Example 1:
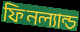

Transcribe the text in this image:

ফিনল্যান্ড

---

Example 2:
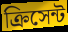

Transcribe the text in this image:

ক্রিসেন্ট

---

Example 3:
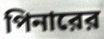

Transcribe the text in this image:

পিনারের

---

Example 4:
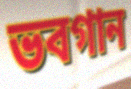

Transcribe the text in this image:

ভবগান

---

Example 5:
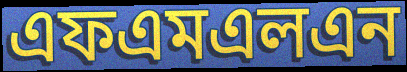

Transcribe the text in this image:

এফএমএলএন